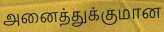
அனைத்துக்குமான